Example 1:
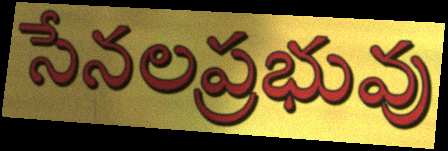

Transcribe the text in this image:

సేనలప్రభువు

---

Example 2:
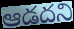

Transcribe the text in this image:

ఆడదని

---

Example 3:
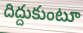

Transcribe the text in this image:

దిద్దుకుంటూ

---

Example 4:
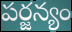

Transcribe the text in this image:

పర్జన్యం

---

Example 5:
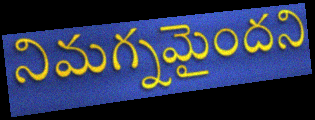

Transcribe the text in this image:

నిమగ్నమైందని